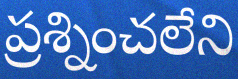
ప్రశ్నించలేని